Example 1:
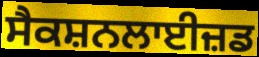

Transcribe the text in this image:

ਸੈਕਸ਼ਨਲਾਈਜ਼ਡ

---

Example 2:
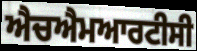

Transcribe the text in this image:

ਐਚਐਮਆਰਟੀਸੀ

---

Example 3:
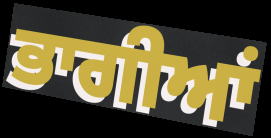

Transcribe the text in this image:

ਭਾਗੀਆਂ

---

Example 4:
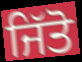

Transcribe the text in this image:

ਜਿੱਤੋ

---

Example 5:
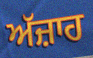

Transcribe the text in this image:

ਅੱਜ਼ਾਹ